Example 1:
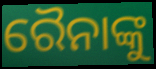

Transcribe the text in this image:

ରୈନାଙ୍କୁ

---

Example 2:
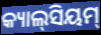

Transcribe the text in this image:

କ୍ୟାଲ୍‌ସିୟମ୍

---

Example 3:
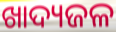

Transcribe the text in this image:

ଖାଦ୍ୟଜଳ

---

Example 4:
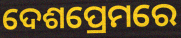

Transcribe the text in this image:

ଦେଶପ୍ରେମରେ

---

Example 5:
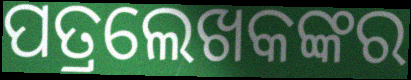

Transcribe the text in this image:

ପତ୍ରଲେଖକଙ୍କର